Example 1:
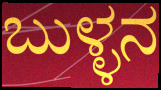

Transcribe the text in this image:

ಬುಳ್ಳನ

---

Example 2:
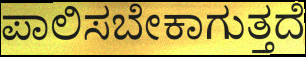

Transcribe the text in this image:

ಪಾಲಿಸಬೇಕಾಗುತ್ತದೆ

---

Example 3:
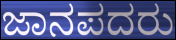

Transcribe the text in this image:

ಜಾನಪದರು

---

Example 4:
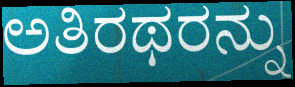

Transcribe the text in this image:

ಅತಿರಥರನ್ನು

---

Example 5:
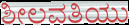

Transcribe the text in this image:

ಶೀಲವತಿಯು